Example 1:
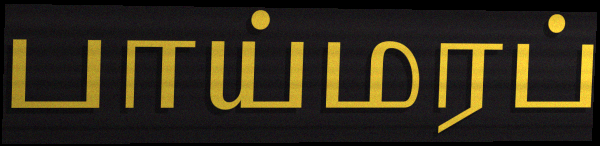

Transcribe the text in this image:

பாய்மரப்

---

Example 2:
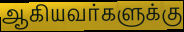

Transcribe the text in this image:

ஆகியவர்களுக்கு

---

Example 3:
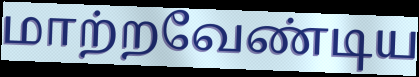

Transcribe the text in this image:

மாற்றவேண்டிய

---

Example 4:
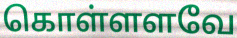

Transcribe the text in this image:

கொள்ளளவே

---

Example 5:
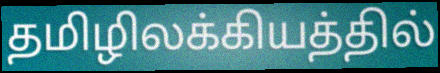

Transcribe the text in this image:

தமிழிலக்கியத்தில்